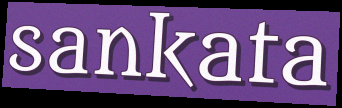
sankata